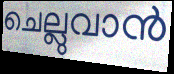
ചെല്ലുവാൻ